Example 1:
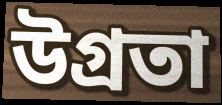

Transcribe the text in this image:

উগ্রতা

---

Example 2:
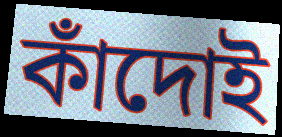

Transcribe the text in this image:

কাঁদোই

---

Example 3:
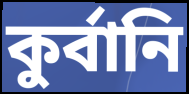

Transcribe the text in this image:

কুর্বানি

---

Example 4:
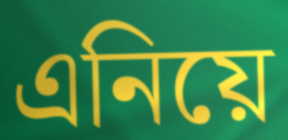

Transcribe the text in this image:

এনিয়ে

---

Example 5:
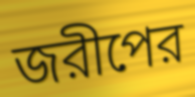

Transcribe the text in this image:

জরীপের